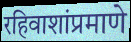
रहिवाशांप्रमाणे